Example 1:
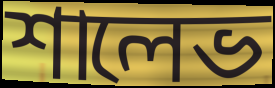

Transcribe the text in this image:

শালেভ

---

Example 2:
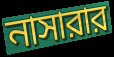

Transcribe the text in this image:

নাসারার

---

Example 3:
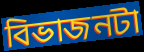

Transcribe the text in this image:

বিভাজনটা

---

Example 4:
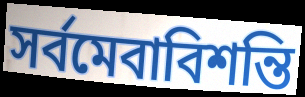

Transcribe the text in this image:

সর্বমেবাবিশন্তি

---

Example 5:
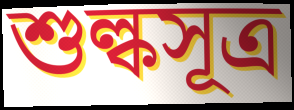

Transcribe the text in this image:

শুল্কসূত্র